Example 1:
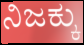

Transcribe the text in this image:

ನಿಜಕ್ಕು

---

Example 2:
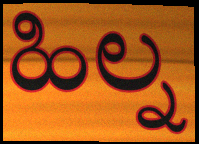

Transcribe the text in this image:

ಹಿಲ್ನ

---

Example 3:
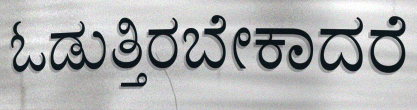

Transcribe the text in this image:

ಓಡುತ್ತಿರಬೇಕಾದರೆ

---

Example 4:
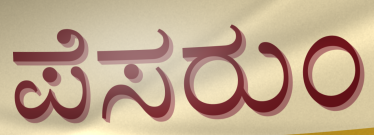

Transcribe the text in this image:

ಪೆಸರುಂ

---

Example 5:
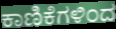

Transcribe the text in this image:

ಕಾಣಿಕೆಗಳಿಂದ